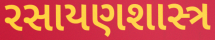
રસાયણશાસ્ત્ર